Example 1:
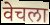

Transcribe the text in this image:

वेचला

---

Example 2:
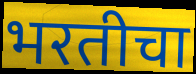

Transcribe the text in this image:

भरतीचा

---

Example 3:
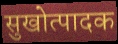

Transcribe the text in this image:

सुखोत्पादक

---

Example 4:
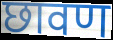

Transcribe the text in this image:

छावण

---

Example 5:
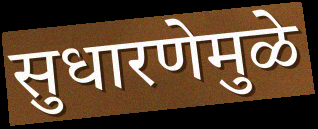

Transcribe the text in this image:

सुधारणेमुळे